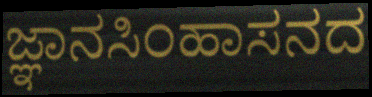
ಜ್ಞಾನಸಿಂಹಾಸನದ